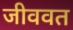
जीववत